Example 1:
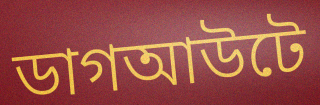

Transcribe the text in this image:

ডাগআউটে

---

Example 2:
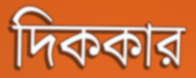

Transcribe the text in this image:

দিককার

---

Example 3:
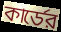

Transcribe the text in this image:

কার্ডের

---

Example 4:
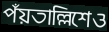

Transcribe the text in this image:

পঁয়তাল্লিশেও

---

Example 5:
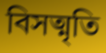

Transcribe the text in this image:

বিসত্মৃতি